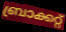
ബ്രാക്കറ്റ്